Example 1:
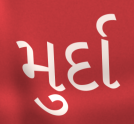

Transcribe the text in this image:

મુર્દા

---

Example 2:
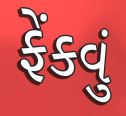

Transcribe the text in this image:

ફેંકવું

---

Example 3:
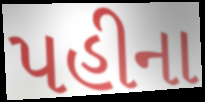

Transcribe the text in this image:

પહીના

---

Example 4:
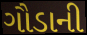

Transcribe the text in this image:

ગૌડાની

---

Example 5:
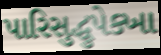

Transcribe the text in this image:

પારિસુદ્ધુપેક્ખા